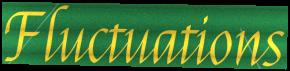
Fluctuations